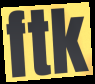
ftk